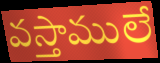
వస్తాములే